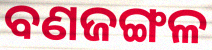
ବଣଜଙ୍ଗଳ